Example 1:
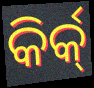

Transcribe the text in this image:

କିର୍କ୍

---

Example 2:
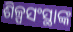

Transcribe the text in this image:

ଶିଳ୍ପସଂସ୍ଥାଙ୍କ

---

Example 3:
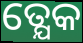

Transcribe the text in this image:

ତ୍ଯେକ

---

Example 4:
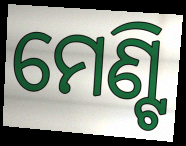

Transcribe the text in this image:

ମେଣ୍ଟି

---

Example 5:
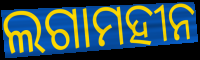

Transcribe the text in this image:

ଲଗାମହୀନ